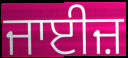
ਜਾਈਜ਼